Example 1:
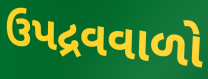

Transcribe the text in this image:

ઉપદ્રવવાળો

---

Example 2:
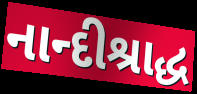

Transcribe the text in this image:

નાન્દીશ્રાદ્ધ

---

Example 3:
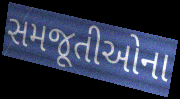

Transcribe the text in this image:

સમજૂતીઓના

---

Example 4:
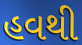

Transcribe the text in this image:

હવથી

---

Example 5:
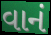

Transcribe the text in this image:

વાનં